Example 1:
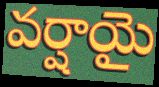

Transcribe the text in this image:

వర్షాయై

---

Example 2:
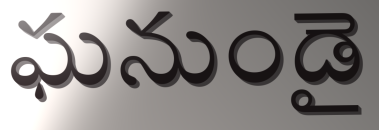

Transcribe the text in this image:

ఘనుండై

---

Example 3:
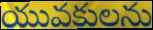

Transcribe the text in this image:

యువకులను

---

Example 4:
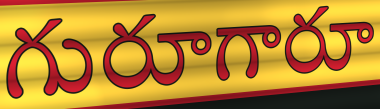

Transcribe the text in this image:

గురూగారూ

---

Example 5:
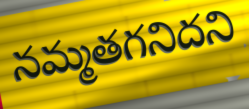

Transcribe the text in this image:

నమ్మతగనిదని